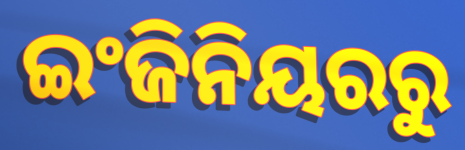
ଇଂଜିନିୟରରୁ